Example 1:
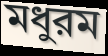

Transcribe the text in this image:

মধুরম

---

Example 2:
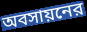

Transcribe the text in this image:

অবসায়নের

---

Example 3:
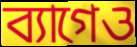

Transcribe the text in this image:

ব্যাগেও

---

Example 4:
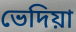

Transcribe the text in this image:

ভেদিয়া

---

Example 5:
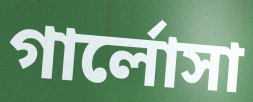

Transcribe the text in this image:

গার্লোসা